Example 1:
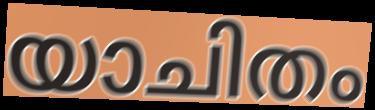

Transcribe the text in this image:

യാചിതം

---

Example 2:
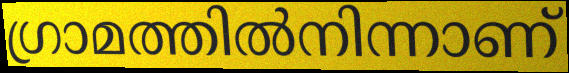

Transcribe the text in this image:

ഗ്രാമത്തിൽനിന്നാണ്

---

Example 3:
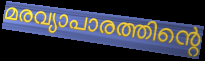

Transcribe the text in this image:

മരവ്യാപാരത്തിന്റെ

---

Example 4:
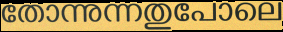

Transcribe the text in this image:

തോന്നുന്നതുപോലെ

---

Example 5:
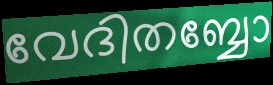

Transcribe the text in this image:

വേദിതബ്ബോ